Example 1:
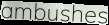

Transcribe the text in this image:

ambushes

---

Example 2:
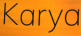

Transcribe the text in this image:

Karya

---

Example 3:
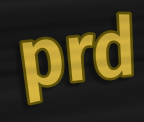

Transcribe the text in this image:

prd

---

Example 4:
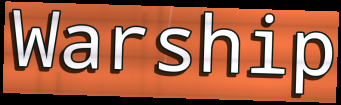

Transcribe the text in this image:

Warship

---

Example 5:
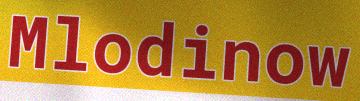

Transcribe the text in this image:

Mlodinow